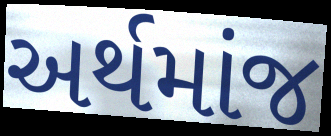
અર્થમાંજ